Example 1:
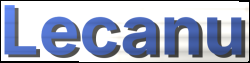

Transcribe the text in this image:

Lecanu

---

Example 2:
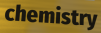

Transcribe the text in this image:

chemistry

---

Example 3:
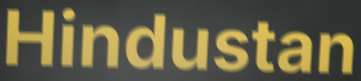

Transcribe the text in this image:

Hindustan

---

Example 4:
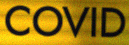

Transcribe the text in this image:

COVID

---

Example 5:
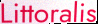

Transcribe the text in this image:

Littoralis